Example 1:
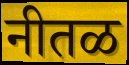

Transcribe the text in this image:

नीतळ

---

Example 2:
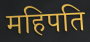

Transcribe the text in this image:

महिपति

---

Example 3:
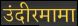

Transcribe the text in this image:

उंदीरमामा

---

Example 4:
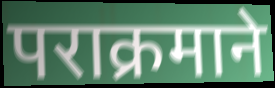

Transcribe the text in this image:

पराक्रमाने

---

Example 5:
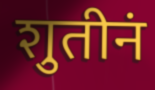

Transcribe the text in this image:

श्रुतीनं